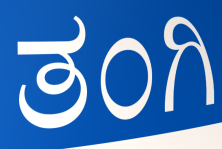
ತಂಗಿ